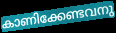
കാണിക്കേണ്ടവനു